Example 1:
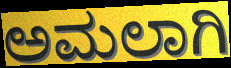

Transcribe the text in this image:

ಅಮಲಾಗಿ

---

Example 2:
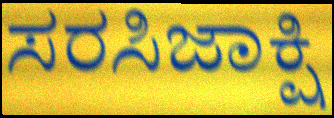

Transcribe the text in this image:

ಸರಸಿಜಾಕ್ಷಿ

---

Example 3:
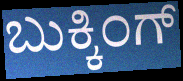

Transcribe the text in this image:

ಬುಕ್ಕಿಂಗ್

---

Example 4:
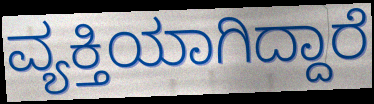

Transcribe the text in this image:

ವ್ಯಕ್ತಿಯಾಗಿದ್ದಾರೆ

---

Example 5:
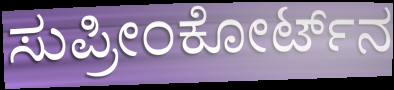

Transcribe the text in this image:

ಸುಪ್ರೀಂಕೋರ್ಟ್‌ನ